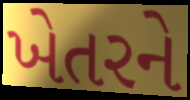
ખેતરને